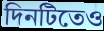
দিনটিতেও